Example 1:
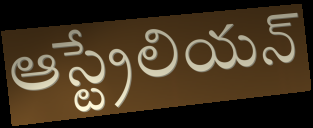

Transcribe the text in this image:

ఆస్ట్రేలియన్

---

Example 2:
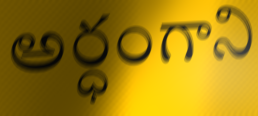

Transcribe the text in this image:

అర్ధంగాని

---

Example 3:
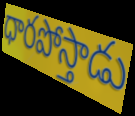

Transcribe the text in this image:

ధారపోస్తాడు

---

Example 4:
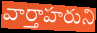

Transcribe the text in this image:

వార్తాహరుని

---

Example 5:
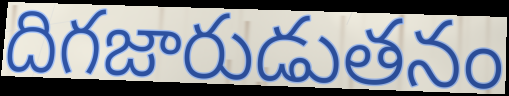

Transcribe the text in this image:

దిగజారుడుతనం